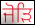
ਜੋੜਿ